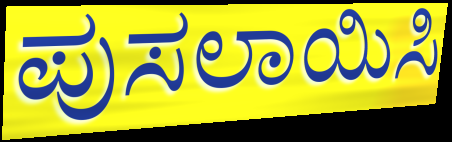
ಪುಸಲಾಯಿಸಿ